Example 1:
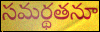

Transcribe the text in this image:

సమర్థతనూ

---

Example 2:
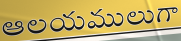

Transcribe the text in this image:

ఆలయములుగా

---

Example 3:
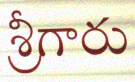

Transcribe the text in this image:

శ్రీగారు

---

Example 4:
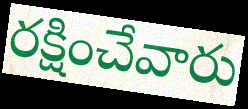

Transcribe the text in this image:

రక్షించేవారు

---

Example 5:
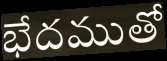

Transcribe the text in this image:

భేదముతో